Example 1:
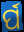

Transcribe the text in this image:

ର୍ପ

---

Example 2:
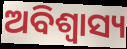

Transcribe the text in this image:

ଅବିଶ୍ୱାସ୍ୟ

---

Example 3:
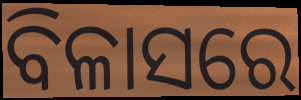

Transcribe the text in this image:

ବିଳାସରେ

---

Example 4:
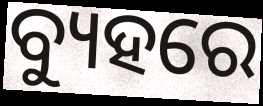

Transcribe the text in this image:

ବ୍ୟୁହରେ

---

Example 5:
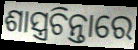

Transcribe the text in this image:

ଶାସ୍ତ୍ରଚିନ୍ତାରେ